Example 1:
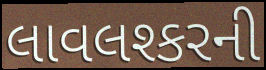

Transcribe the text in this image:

લાવલશ્કરની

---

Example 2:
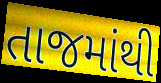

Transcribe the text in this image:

તાજમાંથી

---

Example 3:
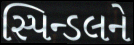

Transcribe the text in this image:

સ્પિન્ડલને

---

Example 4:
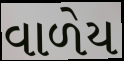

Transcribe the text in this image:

વાળેય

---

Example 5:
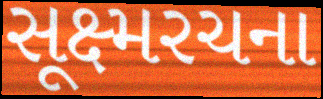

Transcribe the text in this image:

સૂક્ષ્મરચના